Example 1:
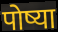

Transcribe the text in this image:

पोष्या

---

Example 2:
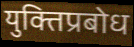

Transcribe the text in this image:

युक्तिप्रबोध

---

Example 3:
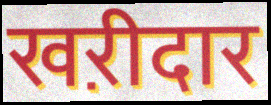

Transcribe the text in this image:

खऱीदार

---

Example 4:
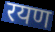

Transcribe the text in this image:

रयण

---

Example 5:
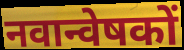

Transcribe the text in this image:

नवान्वेषकों